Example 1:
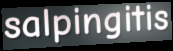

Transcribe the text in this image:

salpingitis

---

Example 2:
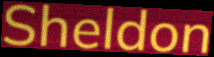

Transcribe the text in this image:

Sheldon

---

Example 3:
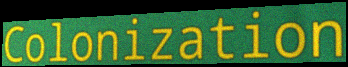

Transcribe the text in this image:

Colonization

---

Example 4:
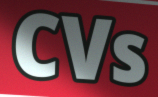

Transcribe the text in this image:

CVs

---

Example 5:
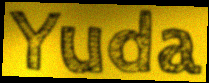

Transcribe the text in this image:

Yuda